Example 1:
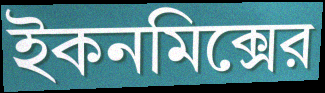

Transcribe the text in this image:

ইকনমিক্সের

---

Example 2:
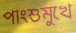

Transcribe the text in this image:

পাংশুমুখে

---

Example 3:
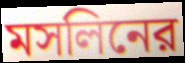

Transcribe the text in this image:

মসলিনের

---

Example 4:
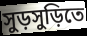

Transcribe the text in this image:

সুড়সুড়িতে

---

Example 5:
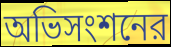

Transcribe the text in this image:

অভিসংশনের